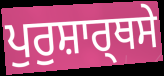
ਪੁਰੁਸ਼ਾਰ੍ਥਸੇ